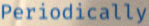
Periodically